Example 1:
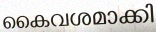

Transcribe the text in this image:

കൈവശമാക്കി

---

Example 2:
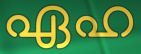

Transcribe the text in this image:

ഏഹ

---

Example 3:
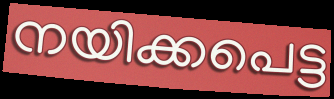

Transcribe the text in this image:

നയിക്കപെട്ട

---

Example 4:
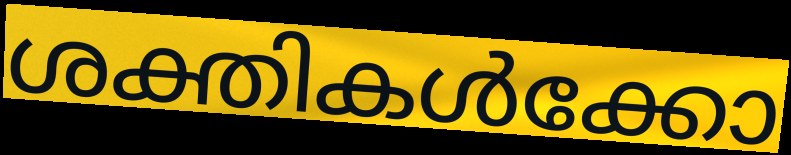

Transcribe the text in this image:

ശക്തികൾക്കോ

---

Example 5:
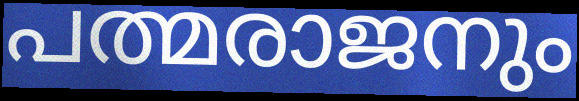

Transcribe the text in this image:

പത്മരാജനും